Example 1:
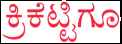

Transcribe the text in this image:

ಕ್ರಿಕೆಟ್ಟಿಗೂ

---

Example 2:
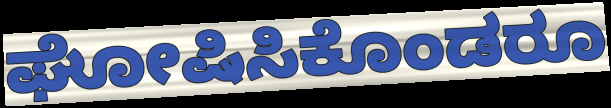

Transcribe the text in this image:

ಘೋಷಿಸಿಕೊಂಡರೂ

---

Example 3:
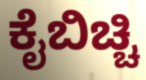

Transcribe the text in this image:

ಕೈಬಿಚ್ಚಿ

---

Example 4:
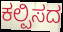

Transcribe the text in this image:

ಕಲ್ಪಿಸದ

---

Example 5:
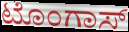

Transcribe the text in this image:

ಟೊಂಗಾಸ್